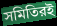
সমিতিরই